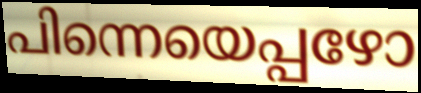
പിന്നെയെപ്പഴോ